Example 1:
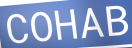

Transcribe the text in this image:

COHAB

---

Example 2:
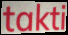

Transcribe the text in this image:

takti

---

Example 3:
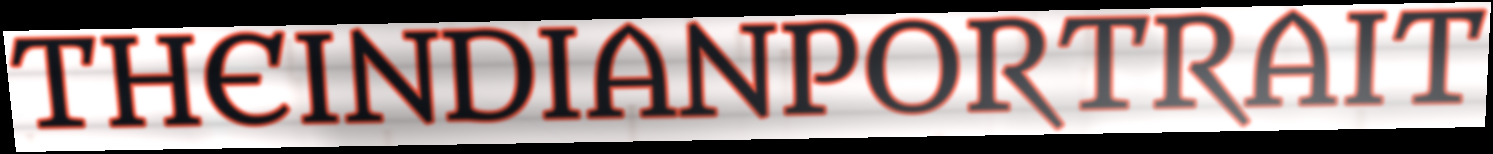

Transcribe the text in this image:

THEINDIANPORTRAIT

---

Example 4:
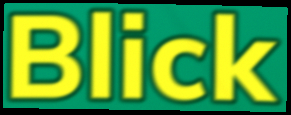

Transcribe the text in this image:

Blick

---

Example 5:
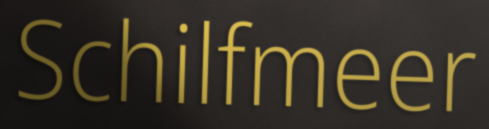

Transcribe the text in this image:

Schilfmeer